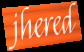
jhered